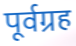
पूर्वग्रह